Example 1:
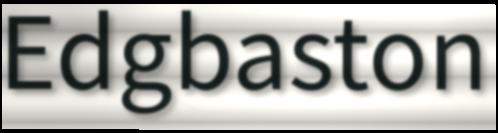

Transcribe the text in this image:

Edgbaston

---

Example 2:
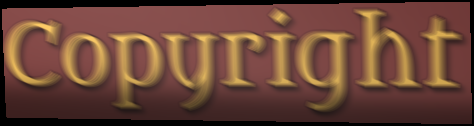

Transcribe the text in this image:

Copyright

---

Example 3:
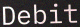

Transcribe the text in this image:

Debit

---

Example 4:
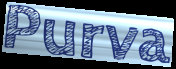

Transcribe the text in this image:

Purva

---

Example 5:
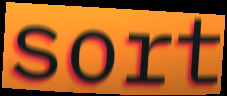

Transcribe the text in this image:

sort